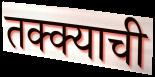
तक्क्याची